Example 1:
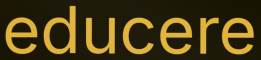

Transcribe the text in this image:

educere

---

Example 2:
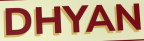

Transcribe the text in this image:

DHYAN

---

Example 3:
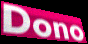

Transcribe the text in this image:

Dono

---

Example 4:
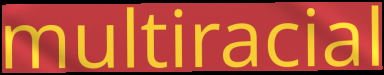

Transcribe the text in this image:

multiracial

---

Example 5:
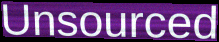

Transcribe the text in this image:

Unsourced